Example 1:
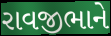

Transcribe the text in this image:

રાવજીભાને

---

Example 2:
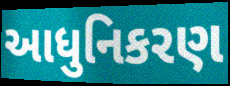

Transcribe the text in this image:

આધુનિકરણ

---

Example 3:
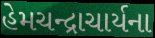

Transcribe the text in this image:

હેમચન્દ્રાચાર્યના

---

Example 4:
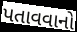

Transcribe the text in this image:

પતાવવાનો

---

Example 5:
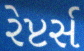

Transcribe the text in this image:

રેપ્ટર્સ